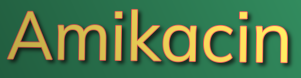
Amikacin